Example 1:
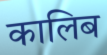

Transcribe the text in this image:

कालिब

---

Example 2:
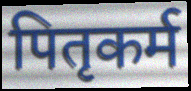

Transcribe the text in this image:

पितृकर्म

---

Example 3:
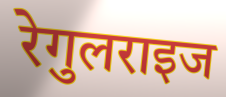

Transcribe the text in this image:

रेगुलराइज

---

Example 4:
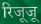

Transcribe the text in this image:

रिजूजू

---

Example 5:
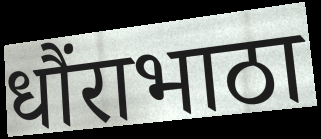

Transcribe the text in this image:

धौंराभाठा